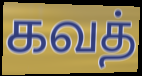
கவத்